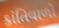
કાંતિવાળો